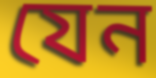
যেন